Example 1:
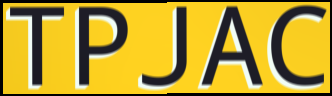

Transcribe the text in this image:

TPJAC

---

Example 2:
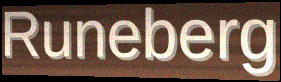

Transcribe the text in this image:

Runeberg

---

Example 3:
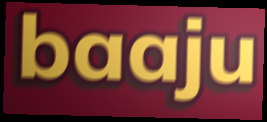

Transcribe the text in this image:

baaju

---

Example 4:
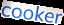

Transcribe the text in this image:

cooker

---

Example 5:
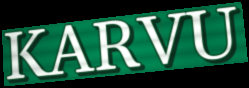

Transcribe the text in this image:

KARVU